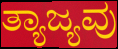
ತ್ಯಾಜ್ಯವು